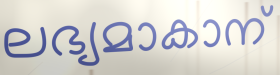
ലഭ്യമാകാന്